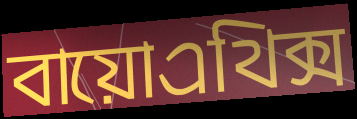
বায়োএথিক্স